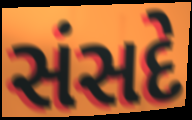
સંસદે